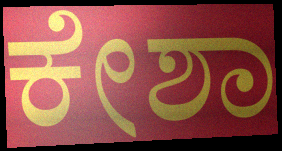
ಕೇಶಾ